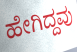
ಹೇಗಿದ್ದವು